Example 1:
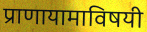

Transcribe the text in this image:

प्राणायामाविषयी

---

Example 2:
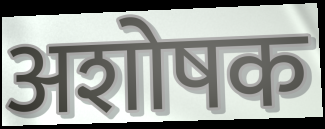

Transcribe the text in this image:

अशोषक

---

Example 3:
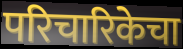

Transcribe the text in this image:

परिचारिकेचा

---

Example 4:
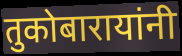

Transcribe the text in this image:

तुकोबारायांनी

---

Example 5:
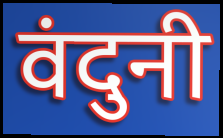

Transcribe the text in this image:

वंदुनी